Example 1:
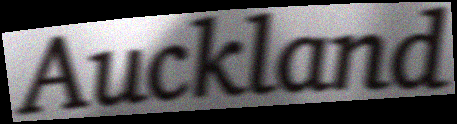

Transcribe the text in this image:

Auckland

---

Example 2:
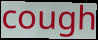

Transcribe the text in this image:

cough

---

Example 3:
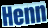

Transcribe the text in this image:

Henn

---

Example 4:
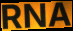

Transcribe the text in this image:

RNA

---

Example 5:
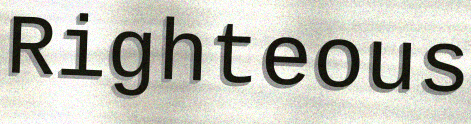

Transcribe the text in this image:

Righteous